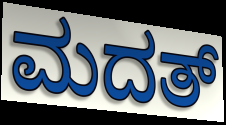
ಮದತ್